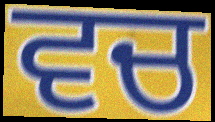
ਵਚ